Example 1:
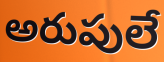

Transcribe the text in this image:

అరుపులే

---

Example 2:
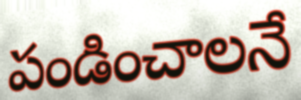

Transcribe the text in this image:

పండించాలనే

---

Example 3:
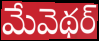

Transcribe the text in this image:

మేవెథర్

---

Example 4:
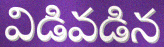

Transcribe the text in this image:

విడివడిన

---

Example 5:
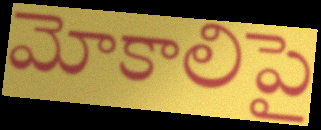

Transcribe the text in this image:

మోకాలిపై